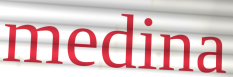
medina